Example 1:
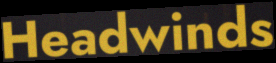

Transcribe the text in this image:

Headwinds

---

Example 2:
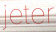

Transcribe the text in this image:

jeter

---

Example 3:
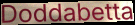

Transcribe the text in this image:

Doddabetta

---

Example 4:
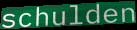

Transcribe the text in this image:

schulden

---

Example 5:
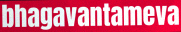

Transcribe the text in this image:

bhagavantameva